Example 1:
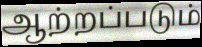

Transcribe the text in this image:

ஆற்றப்படும்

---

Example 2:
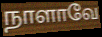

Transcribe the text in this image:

நாளாவே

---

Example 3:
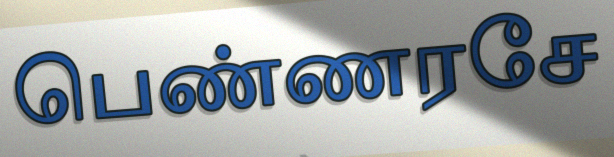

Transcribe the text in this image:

பெண்ணரசே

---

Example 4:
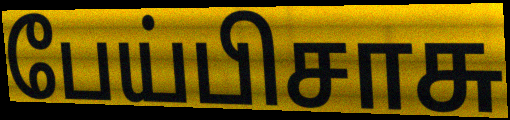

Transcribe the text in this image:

பேய்பிசாசு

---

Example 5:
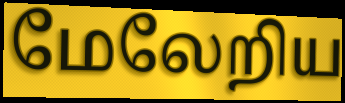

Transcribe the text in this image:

மேலேறிய